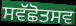
ਸਵੱਛੋਤਸਵ